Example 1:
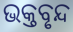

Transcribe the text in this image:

ଭକ୍ତବୃନ୍ଦ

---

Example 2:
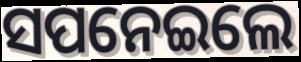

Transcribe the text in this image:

ସପନେଇଲେ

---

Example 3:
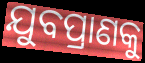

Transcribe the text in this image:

ଯୁବପ୍ରାଣକୁ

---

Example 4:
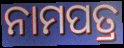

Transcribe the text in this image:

ନାମପତ୍ର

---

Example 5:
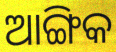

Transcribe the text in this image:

ଆଙ୍ଗିକ